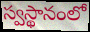
స్వస్థానంలో